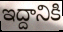
ఇద్దానికి